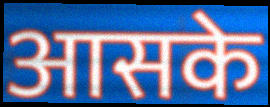
आसके